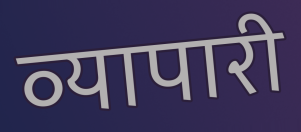
व्‍यापारी